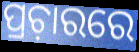
ପ୍ରଚ଼ାରରେ